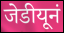
जेडीयूनं